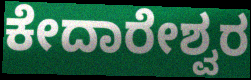
ಕೇದಾರೇಶ್ವರ